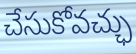
చేసుకోవచ్ఛు